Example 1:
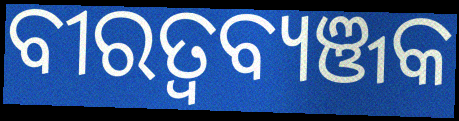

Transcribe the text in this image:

ବୀରତ୍ବବ୍ୟଞ୍ଜକ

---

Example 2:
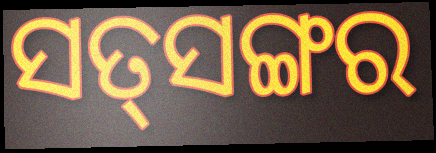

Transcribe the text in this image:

ସତ୍‌ସଙ୍ଗର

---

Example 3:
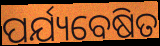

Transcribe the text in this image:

ପର୍ଯ୍ୟବେଷିତ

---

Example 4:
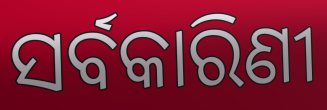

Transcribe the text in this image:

ସର୍ବକାରିଣୀ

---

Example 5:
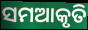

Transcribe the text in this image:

ସମଆକୃତି